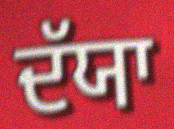
ਦੱਯਾ